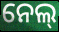
ନେଲ୍